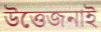
উত্তেজনাই